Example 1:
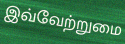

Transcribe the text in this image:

இவ்வேற்றுமை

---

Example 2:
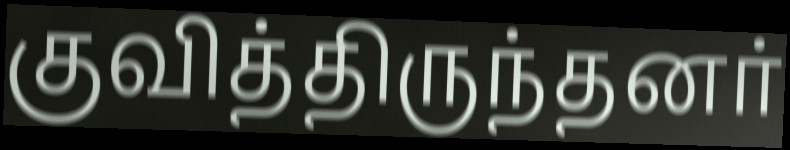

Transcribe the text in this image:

குவித்திருந்தனர்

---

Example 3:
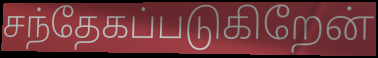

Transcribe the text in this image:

சந்தேகப்படுகிறேன்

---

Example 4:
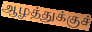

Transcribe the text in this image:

ஆழத்துக்குச்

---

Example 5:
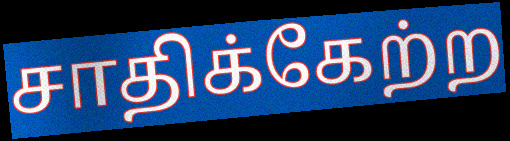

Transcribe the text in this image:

சாதிக்கேற்ற